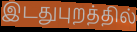
இடதுபுறத்தில்